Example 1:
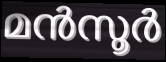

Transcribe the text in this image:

മൻസൂർ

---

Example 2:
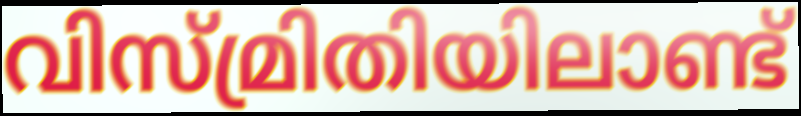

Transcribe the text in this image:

വിസ്മ്രിതിയിലാണ്ട്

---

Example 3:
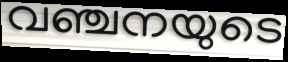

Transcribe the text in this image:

വഞ്ചനയുടെ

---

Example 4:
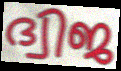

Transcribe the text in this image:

ദ്വിജ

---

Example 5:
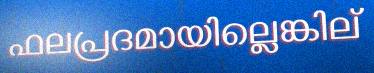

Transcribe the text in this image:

ഫലപ്രദമായില്ലെങ്കില്